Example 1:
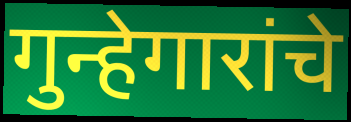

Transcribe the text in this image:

गुन्हेगारांचे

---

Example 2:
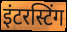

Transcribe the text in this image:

इंटरस्टिंग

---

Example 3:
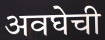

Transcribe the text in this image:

अवघेची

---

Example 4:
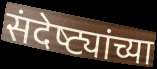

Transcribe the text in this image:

संदेष्ट्यांच्या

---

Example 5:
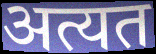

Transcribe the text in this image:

अत्यत